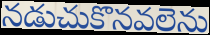
నడుచుకొనవలెను